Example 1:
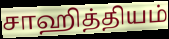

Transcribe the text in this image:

சாஹித்தியம்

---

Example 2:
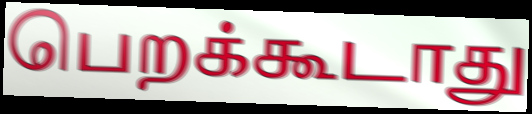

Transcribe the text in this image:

பெறக்கூடாது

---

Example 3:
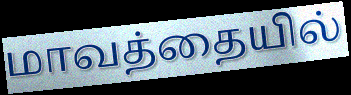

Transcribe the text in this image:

மாவத்தையில்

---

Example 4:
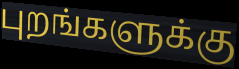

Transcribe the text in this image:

புறங்களுக்கு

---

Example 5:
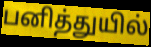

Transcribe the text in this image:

பனித்துயில்